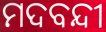
ମଦବନ୍ଦୀ